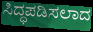
ಸಿದ್ಧಪಡಿಸಲಾದ